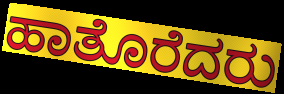
ಹಾತೊರೆದರು